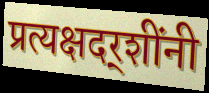
प्रत्यक्षदर्शींनी